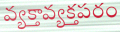
వ్యక్తావ్యక్తపరం